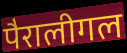
पैरालीगल